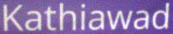
Kathiawad